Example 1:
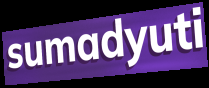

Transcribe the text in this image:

sumadyuti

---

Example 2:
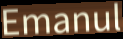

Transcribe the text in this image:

Emanul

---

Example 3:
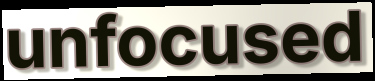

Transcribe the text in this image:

unfocused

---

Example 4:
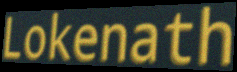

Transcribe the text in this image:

Lokenath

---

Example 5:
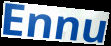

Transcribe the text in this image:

Ennu